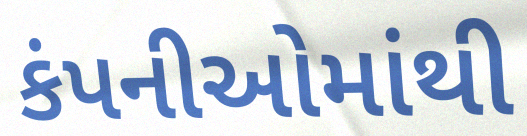
કંપનીઓમાંથી